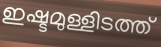
ഇഷ്ടമുള്ളിടത്ത്